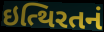
ઇત્થિરતનં